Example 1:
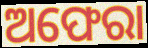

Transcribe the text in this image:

ଅଫେରା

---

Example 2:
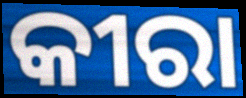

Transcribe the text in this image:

କୀରା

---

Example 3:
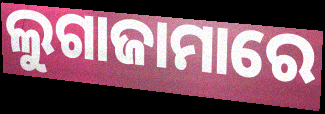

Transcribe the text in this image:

ଲୁଗାଜାମାରେ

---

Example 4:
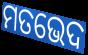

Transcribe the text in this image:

ମତଭେଦ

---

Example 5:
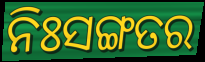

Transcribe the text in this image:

ନିଃସଙ୍ଗତର